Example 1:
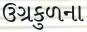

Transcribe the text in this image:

ઉગ્રકુળના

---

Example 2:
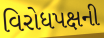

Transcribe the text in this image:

વિરોધપક્ષની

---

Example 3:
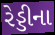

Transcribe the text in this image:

રેડ્ડીના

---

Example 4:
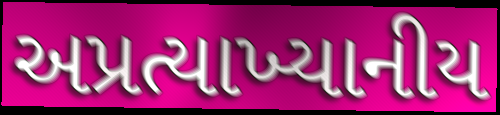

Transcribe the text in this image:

અપ્રત્યાખ્યાનીય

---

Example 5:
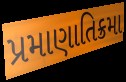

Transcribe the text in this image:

પ્રમાણાતિક્રમા